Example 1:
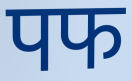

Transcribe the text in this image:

पफ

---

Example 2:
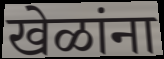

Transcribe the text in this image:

खेळांना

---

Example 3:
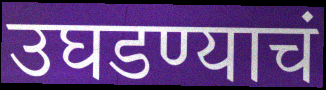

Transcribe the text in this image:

उघडण्याचं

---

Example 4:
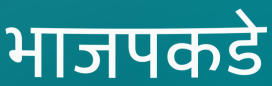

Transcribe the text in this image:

भाजपकडे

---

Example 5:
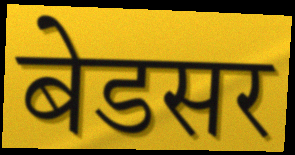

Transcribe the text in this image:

बेडसर